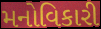
મનોવિકારી